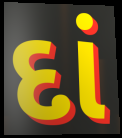
દાં